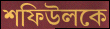
শফিউলকে